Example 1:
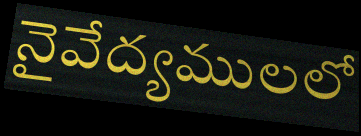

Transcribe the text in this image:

నైవేద్యములలో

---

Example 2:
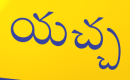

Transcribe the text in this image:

యచ్చ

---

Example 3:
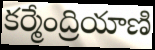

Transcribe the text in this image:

కర్మేంద్రియాణి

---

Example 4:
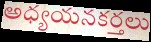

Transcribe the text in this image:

అధ్యయనకర్తలు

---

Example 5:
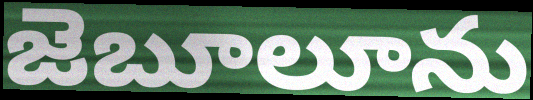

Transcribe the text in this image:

జెబూలూను